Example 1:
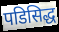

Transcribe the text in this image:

पडिसिद्ध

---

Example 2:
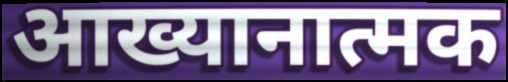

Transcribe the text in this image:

आख्यानात्मक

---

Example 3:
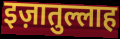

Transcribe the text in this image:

इज़ातुल्लाह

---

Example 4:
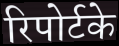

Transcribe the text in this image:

रिपोर्टके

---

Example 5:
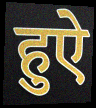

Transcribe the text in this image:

हुऐ